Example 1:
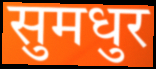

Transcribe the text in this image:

सुमधुर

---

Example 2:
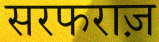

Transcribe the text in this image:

सरफराज़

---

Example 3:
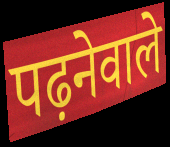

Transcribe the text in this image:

पढ़नेवाले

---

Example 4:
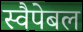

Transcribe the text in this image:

स्वैपेबल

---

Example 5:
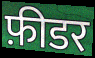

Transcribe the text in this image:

फ़ीडर